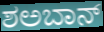
ಶಅಬಾನ್